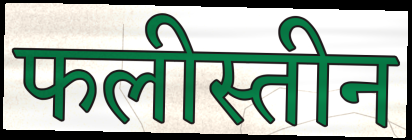
फलीस्तीन